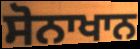
ਸੋਨਾਖਾਨ